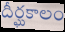
దీర్ఘకాలం